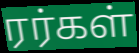
ரர்கள்